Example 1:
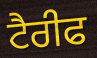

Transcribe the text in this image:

ਟੈਰੀਫ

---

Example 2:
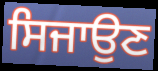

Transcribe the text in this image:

ਸਿਜਾਉਣ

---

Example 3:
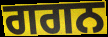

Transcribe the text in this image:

ਗਗਨ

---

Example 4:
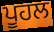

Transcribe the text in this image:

ਪੂਹਲ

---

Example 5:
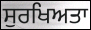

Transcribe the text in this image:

ਸੁਰਖਿਅਤਾ